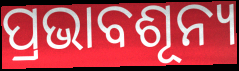
ପ୍ରଭାବଶୂନ୍ୟ